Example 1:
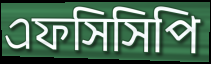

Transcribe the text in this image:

এফসিসিপি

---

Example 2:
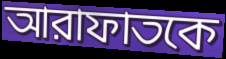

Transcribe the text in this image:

আরাফাতকে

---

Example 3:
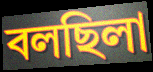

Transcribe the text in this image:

বলছিলা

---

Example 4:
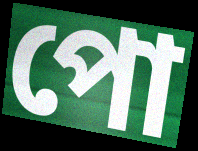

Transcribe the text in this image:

পো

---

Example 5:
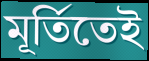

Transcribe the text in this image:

মূর্তিতেই